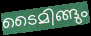
ടൈമിങ്ങും